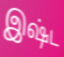
இஷ்ட